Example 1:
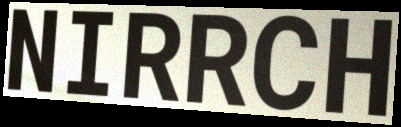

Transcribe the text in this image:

NIRRCH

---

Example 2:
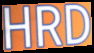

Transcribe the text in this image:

HRD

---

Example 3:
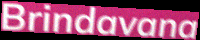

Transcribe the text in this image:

Brindavana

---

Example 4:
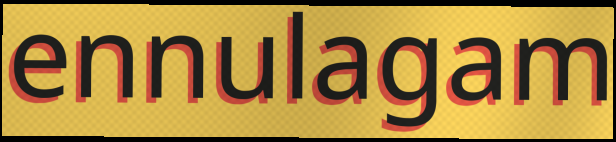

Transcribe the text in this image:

ennulagam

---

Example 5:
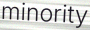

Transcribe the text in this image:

minority